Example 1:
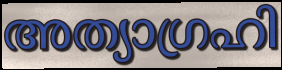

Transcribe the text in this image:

അത്യാഗ്രഹി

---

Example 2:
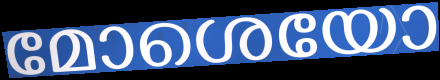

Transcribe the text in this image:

മോശെയോ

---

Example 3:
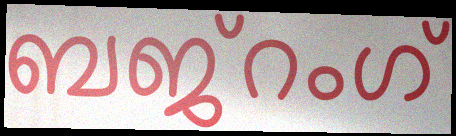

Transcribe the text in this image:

ബജ്റംഗ്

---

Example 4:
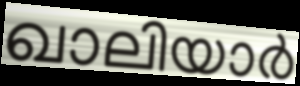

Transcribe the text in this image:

ഖാലിയാർ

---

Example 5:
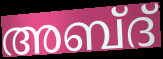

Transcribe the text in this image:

അബ്ദ്